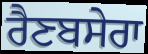
ਰੈਣਬਸੇਰਾ